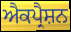
ਐਕਪ੍ਰੈਸ਼ਨ